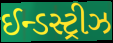
ઈન્ડસ્ટ્રીઝ